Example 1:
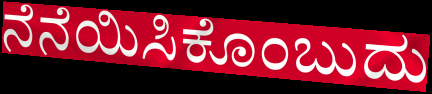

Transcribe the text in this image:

ನೆನೆಯಿಸಿಕೊಂಬುದು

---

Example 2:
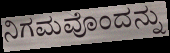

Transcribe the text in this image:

ನಿಗಮವೊಂದನ್ನು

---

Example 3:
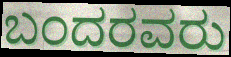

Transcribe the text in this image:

ಬಂದರವರು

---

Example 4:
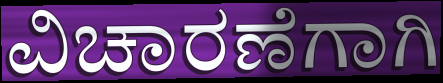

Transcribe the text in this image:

ವಿಚಾರಣೆಗಾಗಿ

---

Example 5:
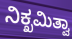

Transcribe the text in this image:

ನಿಕ್ಖಮಿತ್ವಾ